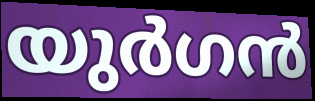
യുർഗൻ